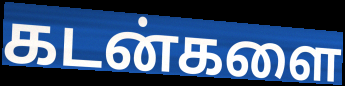
கடன்களை